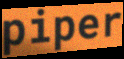
piper